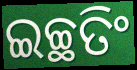
ଇଚ୍ଛତିଂ